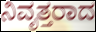
ನಿವೃತ್ತರಾದ